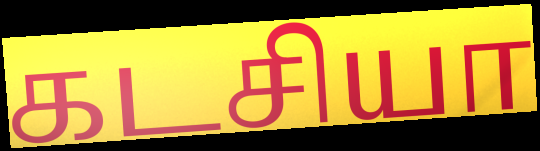
கடசியா